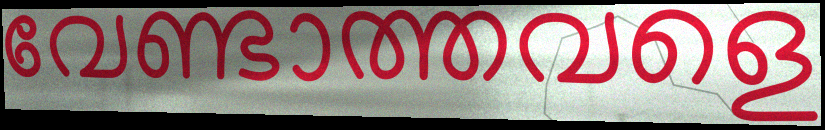
വേണ്ടാത്തവളെ